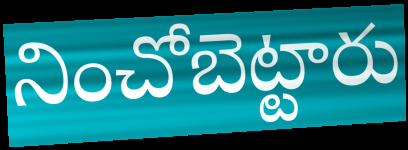
నించోబెట్టారు